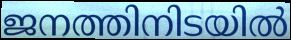
ജനത്തിനിടയിൽ